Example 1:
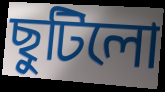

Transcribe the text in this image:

ছুটিলো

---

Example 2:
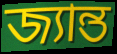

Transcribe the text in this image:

জ্যান্ত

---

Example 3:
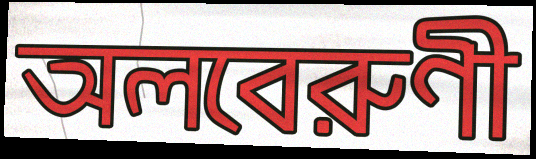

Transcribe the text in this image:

অলবেরুণী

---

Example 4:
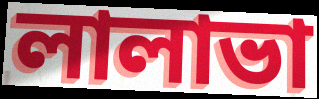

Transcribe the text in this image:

লালাভা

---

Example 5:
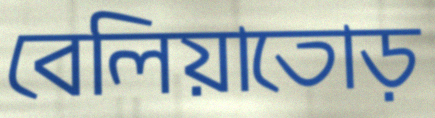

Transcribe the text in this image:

বেলিয়াতোড়